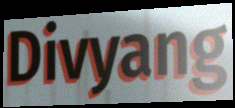
Divyang